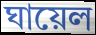
ঘায়েল